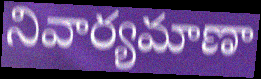
నివార్యమాణా